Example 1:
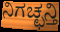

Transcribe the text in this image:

ನಿಗಚ್ಛನ್ತಿ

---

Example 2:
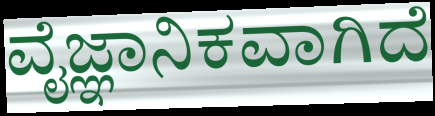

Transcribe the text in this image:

ವೈಜ್ಞಾನಿಕವಾಗಿದೆ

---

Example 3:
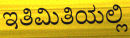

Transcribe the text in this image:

ಇತಿಮಿತಿಯಲ್ಲಿ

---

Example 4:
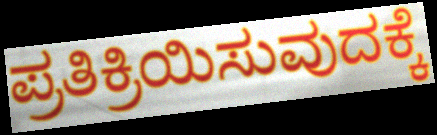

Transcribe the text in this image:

ಪ್ರತಿಕ್ರಿಯಿಸುವುದಕ್ಕೆ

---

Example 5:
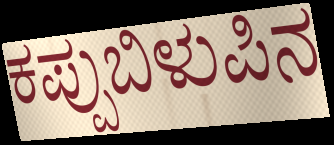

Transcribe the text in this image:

ಕಪ್ಪುಬಿಳುಪಿನ